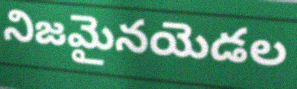
నిజమైనయెడల